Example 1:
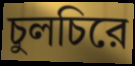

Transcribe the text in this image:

চুলচিরে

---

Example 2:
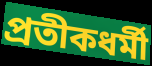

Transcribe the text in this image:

প্রতীকধর্মী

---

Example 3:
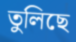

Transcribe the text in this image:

তুলিছে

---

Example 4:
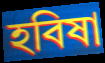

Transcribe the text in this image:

হবিষা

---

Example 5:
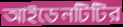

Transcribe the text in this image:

আইডেনটিটির